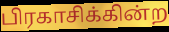
பிரகாசிக்கின்ற